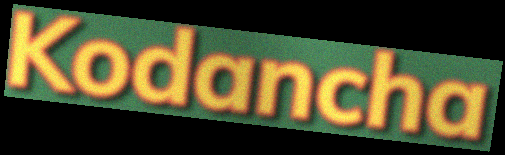
Kodancha